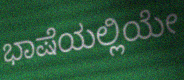
ಭಾಷೆಯಲ್ಲಿಯೇ